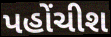
પહોંચીશ